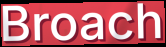
Broach